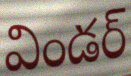
విండర్